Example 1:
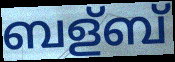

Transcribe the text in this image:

ബള്ബ്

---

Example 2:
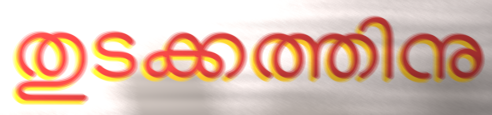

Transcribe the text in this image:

തുടക്കത്തിനു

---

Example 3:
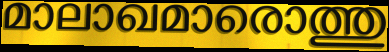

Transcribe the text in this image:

മാലാഖമാരൊത്തു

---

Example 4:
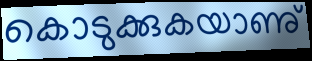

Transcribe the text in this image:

കൊടുക്കുകയാണു്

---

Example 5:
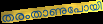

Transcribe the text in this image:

തരംതാണുപോയി